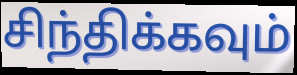
சிந்திக்கவும்